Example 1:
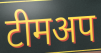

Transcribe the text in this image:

टीमअप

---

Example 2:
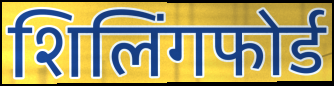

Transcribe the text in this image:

शिलिंगफोर्ड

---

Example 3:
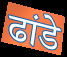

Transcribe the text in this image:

ढांडे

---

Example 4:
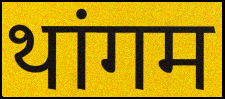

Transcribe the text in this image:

थांगम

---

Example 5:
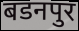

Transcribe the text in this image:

बडनपुर